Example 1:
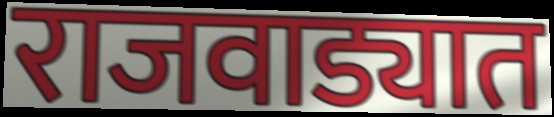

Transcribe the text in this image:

राजवाड्यात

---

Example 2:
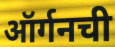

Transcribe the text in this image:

ऑर्गनची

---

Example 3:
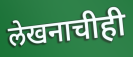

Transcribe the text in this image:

लेखनाचीही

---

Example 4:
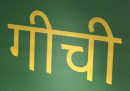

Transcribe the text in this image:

गीची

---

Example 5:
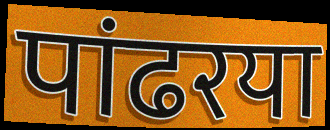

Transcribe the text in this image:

पांढरया